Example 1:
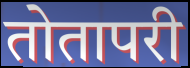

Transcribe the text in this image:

तोतापरी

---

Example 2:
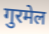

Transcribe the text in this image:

गुरमेल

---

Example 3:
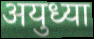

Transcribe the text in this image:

अयुध्या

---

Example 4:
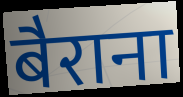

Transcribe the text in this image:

बैराना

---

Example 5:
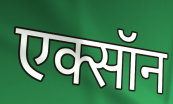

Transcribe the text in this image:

एक्सॉन